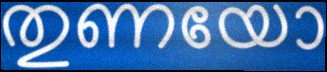
തുണയോ